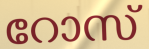
റോസ്